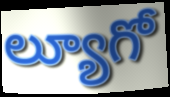
ల్యూగో